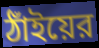
ঠাঁইয়ের